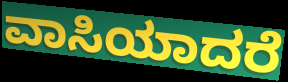
ವಾಸಿಯಾದರೆ